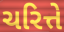
ચરિત્તે